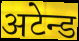
अटेन्ड